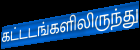
கட்டடங்களிலிருந்து